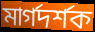
মার্গদর্শক